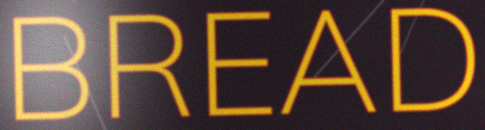
BREAD